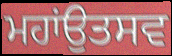
ਮਹਾਂਉਤਸਵ